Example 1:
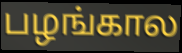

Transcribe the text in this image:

பழங்கால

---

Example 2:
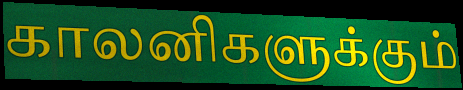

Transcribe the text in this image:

காலனிகளுக்கும்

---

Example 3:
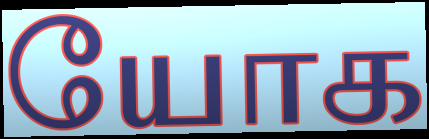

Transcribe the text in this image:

யோக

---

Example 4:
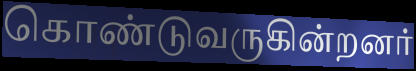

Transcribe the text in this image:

கொண்டுவருகின்றனர்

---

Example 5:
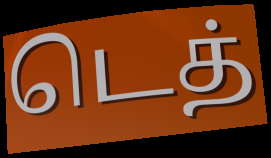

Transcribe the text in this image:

டெத்